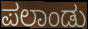
ಪಲಾಂಡು